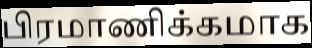
பிரமாணிக்கமாக